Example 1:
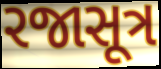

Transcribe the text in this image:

રજાસૂત્ર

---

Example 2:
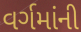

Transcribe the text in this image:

વર્ગમાંની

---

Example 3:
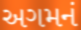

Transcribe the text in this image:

અગમનં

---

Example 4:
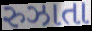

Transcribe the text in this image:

રુઝાતા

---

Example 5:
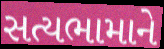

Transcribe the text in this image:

સત્યભામાને